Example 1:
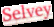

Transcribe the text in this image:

Selvey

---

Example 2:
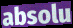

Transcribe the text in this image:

absolu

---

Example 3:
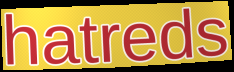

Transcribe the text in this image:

hatreds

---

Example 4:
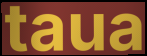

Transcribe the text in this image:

taua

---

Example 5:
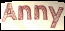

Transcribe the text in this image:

Anny